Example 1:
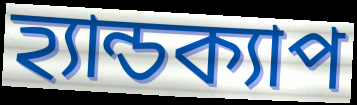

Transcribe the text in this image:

হ্যান্ডক্যাপ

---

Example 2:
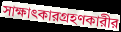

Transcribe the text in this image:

সাক্ষাৎকারগ্রহণকারীর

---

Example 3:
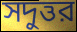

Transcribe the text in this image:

সদুত্তর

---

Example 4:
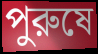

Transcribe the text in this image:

পুরুষে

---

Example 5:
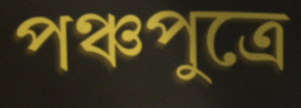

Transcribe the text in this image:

পঞ্চপুত্রে